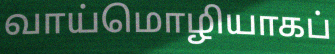
வாய்மொழியாகப்